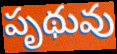
పృథువు